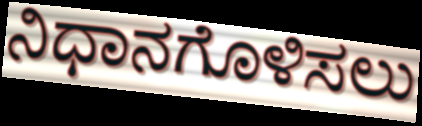
ನಿಧಾನಗೊಳಿಸಲು